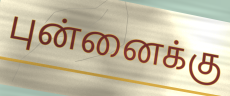
புன்னைக்கு